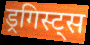
ड्रगिस्ट्स